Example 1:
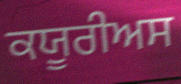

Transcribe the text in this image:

ਕਯੂਰੀਅਸ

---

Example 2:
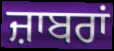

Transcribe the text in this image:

ਜ਼ਾਬਰਾਂ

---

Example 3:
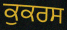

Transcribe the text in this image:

ਕੁਕਰਸ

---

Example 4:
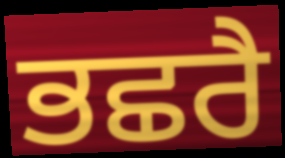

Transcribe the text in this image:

ਭਛਰੈ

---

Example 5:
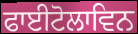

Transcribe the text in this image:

ਫਾਈਟੋਲਾਵਿਨ